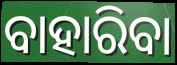
ବାହାରିବା